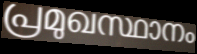
പ്രമുഖസ്ഥാനം